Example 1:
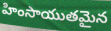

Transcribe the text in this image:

హింసాయుతమైన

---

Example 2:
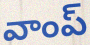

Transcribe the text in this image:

వాంప్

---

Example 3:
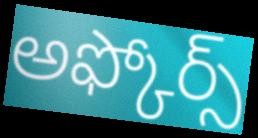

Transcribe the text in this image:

అఫ్కోర్స్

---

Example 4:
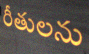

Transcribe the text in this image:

రీతులను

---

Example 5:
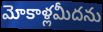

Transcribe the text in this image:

మోకాళ్లమీదను